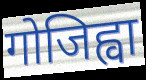
गोजिह्वा